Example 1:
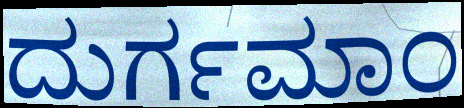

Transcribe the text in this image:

ದುರ್ಗಮಾಂ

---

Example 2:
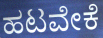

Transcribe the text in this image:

ಹಟವೇಕೆ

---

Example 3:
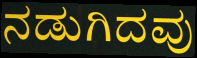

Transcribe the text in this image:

ನಡುಗಿದವು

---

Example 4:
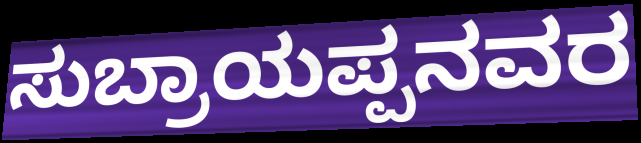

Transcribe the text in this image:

ಸುಬ್ರಾಯಪ್ಪನವರ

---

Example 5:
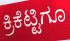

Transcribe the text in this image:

ಕ್ರಿಕೆಟ್ಟಿಗೂ